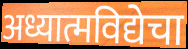
अध्यात्मविद्येचा